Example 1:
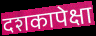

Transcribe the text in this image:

दशकापेक्षा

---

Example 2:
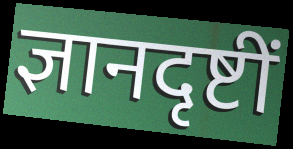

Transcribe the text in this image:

ज्ञानदृष्टीं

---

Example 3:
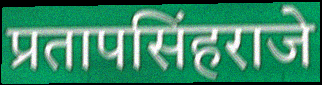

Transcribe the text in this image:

प्रतापसिंहराजे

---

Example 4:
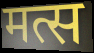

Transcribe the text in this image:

मत्स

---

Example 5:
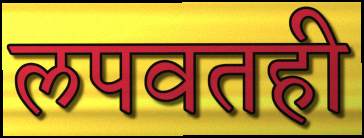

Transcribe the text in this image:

लपवतही